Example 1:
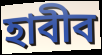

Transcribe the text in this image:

হাবীব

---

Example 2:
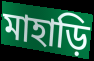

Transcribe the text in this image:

মাহাড়ি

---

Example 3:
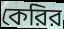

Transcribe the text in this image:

কেরির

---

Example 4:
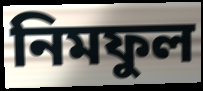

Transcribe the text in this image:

নিমফুল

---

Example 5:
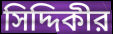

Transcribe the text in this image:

সিদ্দিকীর